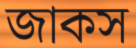
জাকস